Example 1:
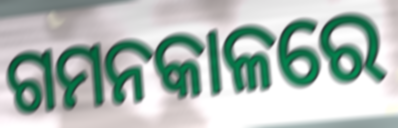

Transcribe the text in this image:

ଗମନକାଳରେ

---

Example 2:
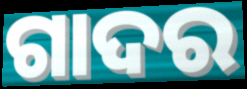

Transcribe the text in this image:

ଗାଦର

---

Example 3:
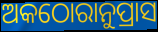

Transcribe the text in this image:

ଅକଠୋରାନୁପ୍ରାସ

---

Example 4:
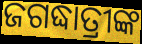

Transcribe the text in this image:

ଜଗଦ୍ଧାତ୍ରୀଙ୍କ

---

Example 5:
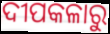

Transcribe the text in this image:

ଦୀପକଳାରୁ